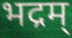
भद्रम्